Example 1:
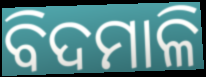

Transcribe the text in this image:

ବିଦମାଳି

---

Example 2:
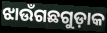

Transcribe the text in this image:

ଝାଉଁଗଛଗୁଡ଼ାକ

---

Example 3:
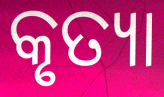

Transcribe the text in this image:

କୃତ୍ୟା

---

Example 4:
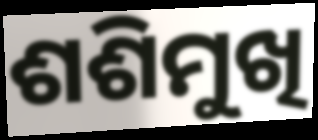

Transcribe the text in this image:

ଶଶିମୁଖି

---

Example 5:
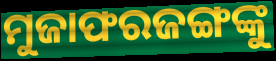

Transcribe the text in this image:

ମୁଜାଫରଜଙ୍ଗଙ୍କୁ